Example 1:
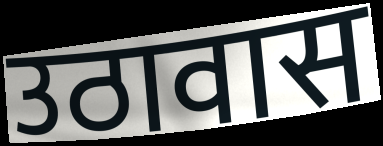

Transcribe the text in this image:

उठावास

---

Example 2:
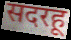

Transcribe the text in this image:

सदरहू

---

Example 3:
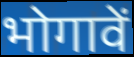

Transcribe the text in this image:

भोगावें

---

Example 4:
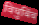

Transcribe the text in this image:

विधुबिंब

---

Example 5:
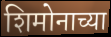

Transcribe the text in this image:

शिमोनाच्या